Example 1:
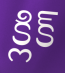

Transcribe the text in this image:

క్లిక్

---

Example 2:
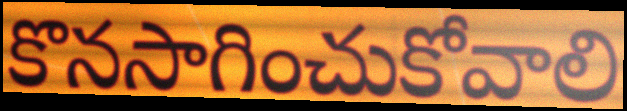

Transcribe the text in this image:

కొనసాగించుకోవాలి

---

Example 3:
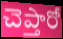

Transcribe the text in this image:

చెప్తారో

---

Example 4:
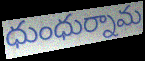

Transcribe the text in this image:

ధుంధుర్నామ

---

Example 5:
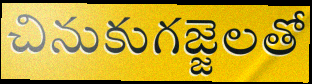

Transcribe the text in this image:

చినుకుగజ్జెలతో